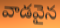
వాడవైన